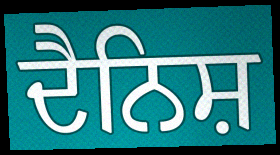
ਦੈਨਿਸ਼